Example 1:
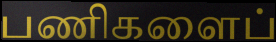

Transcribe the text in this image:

பணிகளைப்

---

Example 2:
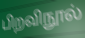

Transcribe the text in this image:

பிறவிநூல்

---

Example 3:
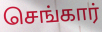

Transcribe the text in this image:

செங்கார்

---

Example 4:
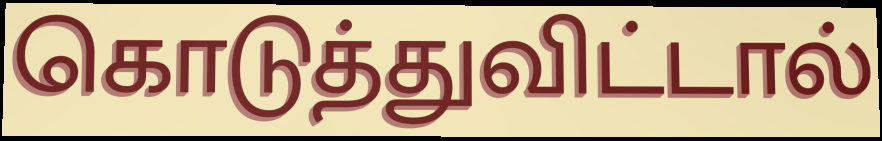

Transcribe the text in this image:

கொடுத்துவிட்டால்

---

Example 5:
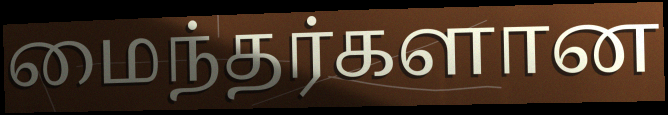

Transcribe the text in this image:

மைந்தர்களான